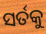
ସର୍ତକୁ